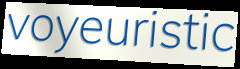
voyeuristic